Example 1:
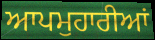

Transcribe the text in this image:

ਆਪਮੁਹਾਰੀਆਂ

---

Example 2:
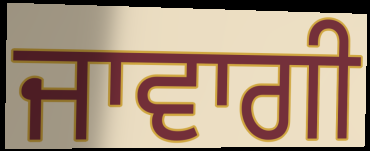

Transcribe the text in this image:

ਜਾਵਾਗੀ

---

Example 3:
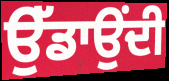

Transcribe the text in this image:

ਉੱਡਾਉਂਦੀ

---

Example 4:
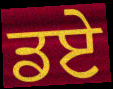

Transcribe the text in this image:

ਡਏ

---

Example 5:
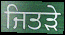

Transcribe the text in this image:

ਜਿਤੜੇ